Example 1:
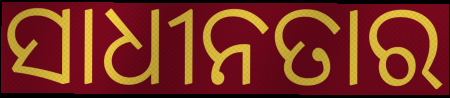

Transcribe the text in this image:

ସାଧୀନତାର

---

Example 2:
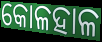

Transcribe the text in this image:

କୋଳହାଳ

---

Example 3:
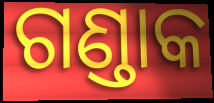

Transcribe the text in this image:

ଗଣ୍ଡାକ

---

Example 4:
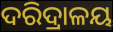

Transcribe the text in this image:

ଦରିଦ୍ରାଳୟ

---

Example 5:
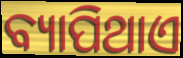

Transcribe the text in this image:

ବ୍ୟାପିଥାଏ